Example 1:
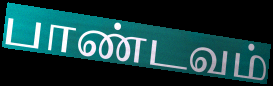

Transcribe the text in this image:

பாண்டவம்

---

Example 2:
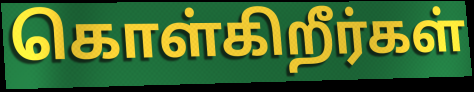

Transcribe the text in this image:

கொள்கிறீர்கள்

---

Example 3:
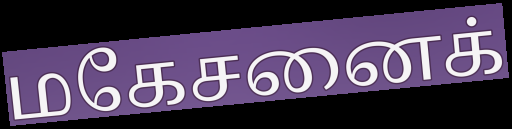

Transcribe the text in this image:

மகேசனைக்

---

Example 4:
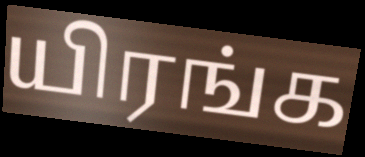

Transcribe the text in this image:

யிரங்க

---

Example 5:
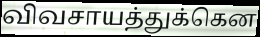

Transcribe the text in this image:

விவசாயத்துக்கென